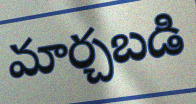
మార్చబడి